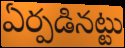
ఏర్పడినట్టు